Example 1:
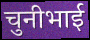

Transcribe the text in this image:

चुनीभाई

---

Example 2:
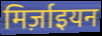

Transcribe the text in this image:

मिर्ज़ाइयन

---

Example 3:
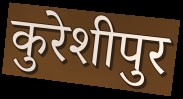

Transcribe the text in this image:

कुरेशीपुर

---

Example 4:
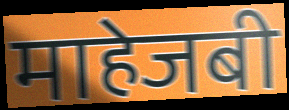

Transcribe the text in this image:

माहेजबी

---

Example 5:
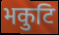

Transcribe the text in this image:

भकुटि